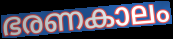
ഭരണകാലം